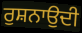
ਰੁਸ਼ਨਾਉਦੀ